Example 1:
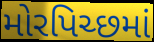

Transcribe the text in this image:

મોરપિચ્છમાં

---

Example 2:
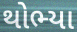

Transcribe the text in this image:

થોભ્યા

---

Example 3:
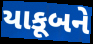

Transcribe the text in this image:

યાકૂબને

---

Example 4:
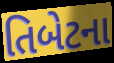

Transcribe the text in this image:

તિબેટના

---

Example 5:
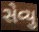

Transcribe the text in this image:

સેવ્યુ